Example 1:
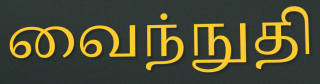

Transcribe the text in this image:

வைந்நுதி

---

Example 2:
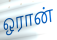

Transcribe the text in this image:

ஒரான்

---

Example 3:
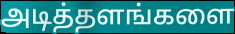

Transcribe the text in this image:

அடித்தளங்களை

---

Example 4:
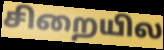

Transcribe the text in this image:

சிறையில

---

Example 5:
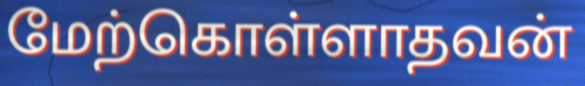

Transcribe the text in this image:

மேற்கொள்ளாதவன்